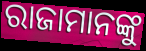
ରାଜାମାନଙ୍କୁ